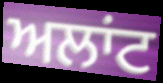
ਅਲਾਂਟ